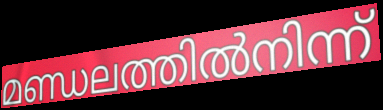
മണ്ഡലത്തിൽനിന്ന്